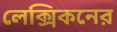
লেক্সিকনের